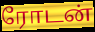
ரோடன்